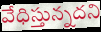
వేధిస్తున్నదని